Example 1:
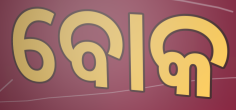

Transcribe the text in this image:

ବୋକ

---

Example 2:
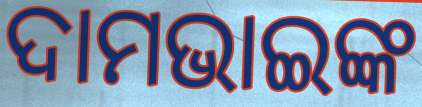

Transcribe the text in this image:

ଦାମଭାଇଙ୍କ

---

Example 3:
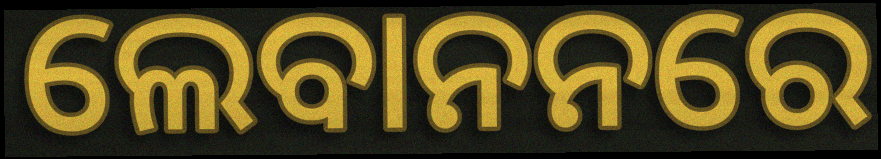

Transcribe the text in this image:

ଲେବାନନରେ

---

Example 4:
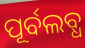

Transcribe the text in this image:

ପୂର୍ବଲବ୍ଧ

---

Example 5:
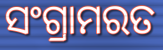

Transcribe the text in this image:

ସଂଗ୍ରାମରତ